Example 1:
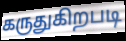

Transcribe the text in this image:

கருதுகிறபடி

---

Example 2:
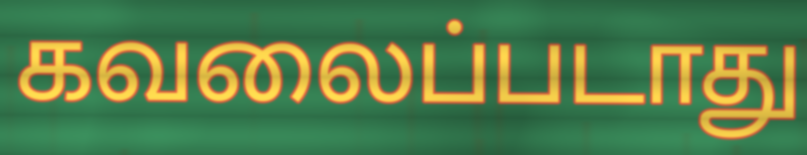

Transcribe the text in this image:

கவலைப்படாது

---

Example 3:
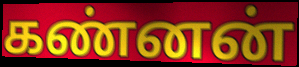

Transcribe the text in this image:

கண்னன்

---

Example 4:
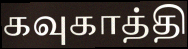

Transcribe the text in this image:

கவுகாத்தி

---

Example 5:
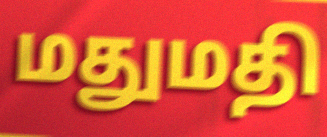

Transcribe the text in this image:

மதுமதி